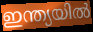
ഇന്ത്യയിൽ